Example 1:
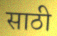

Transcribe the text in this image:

साठी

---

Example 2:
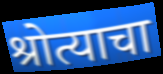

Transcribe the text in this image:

श्रोत्याचा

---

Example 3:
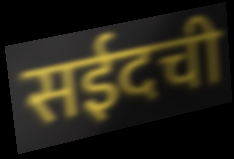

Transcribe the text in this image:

सईदची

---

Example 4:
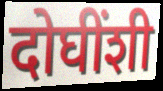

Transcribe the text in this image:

दोघींशी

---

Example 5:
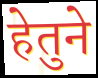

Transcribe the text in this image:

हेतुने